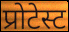
प्रोटेस्ट